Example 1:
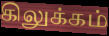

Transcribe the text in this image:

கிலுக்கம்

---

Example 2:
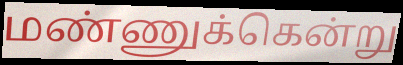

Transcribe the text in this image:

மண்ணுக்கென்று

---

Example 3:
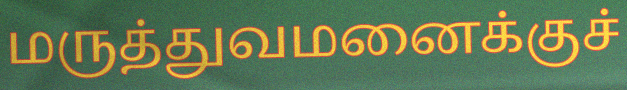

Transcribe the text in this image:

மருத்துவமனைக்குச்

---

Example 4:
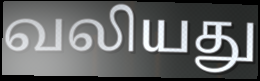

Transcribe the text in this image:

வலியது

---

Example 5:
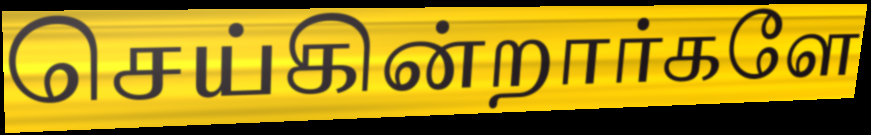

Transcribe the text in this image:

செய்கின்றார்களே